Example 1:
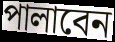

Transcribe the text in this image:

পালাবেন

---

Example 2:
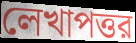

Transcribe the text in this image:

লেখাপত্তর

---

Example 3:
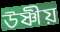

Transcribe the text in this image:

উষ্ণীয়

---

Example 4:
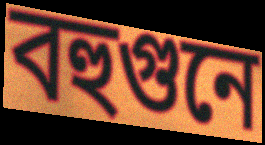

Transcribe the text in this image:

বহুগুনে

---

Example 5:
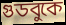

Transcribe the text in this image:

গুডবুকে